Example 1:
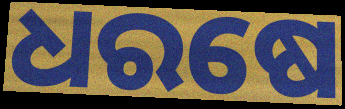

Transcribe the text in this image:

ଧରଷେ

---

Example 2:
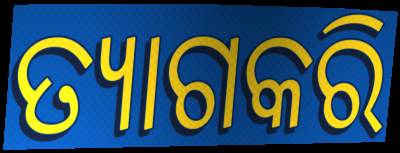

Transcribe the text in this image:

ତ୍ଯାଗକରି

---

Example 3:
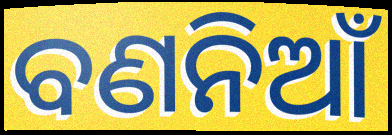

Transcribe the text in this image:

ବଣନିଆଁ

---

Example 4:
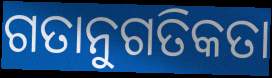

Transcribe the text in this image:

ଗତାନୁଗତିକତା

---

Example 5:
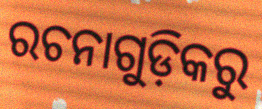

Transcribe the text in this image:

ରଚନାଗୁଡ଼ିକରୁ